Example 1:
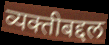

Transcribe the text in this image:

व्यक्तीबद्दल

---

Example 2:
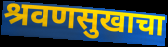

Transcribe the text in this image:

श्रवणसुखाचा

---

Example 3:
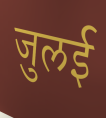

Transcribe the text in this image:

जुलई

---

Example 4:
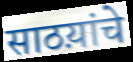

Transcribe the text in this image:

साठय़ांचे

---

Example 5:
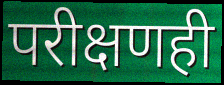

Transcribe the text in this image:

परीक्षणही